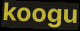
koogu